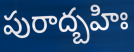
పురాద్బహిః